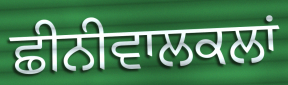
ਛੀਨੀਵਾਲਕਲਾਂ